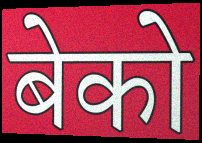
बेको